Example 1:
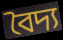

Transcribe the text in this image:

বৈদ্য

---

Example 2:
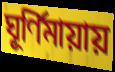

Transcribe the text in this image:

ঘূর্ণিমায়ায়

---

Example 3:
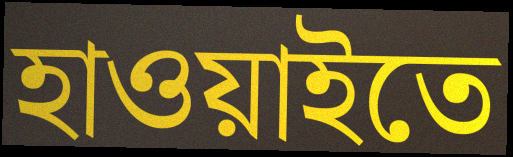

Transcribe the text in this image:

হাওয়াইতে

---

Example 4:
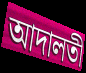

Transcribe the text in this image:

আদালতী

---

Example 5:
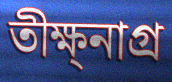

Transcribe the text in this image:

তীক্ষ্নাগ্র